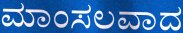
ಮಾಂಸಲವಾದ